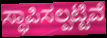
ಸ್ಥಾಪಿಸಲ್ಪಟ್ಟಿವೆ